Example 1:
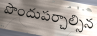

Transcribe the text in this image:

పొందుపర్చాల్సిన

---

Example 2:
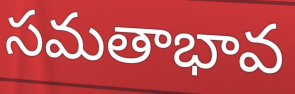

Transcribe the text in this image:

సమతాభావ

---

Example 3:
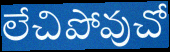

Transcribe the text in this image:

లేచిపోవుచో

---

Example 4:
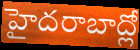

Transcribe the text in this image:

హైదరాబాద్లో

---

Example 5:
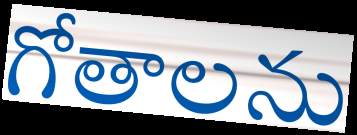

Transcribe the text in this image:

గోతాలను